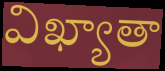
విఖ్యాతా